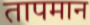
तापमान